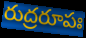
రుద్రరూపః